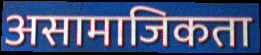
असामाजिकता